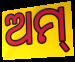
ଅମ୍